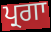
ਪ੍ਰਗਾ